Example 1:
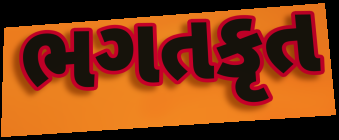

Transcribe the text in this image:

ભગતકૃત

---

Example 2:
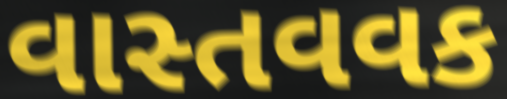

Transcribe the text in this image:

વાસ્તવવક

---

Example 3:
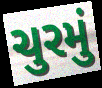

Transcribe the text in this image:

ચુરમું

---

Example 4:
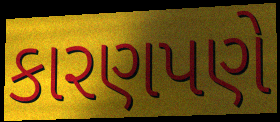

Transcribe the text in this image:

કારણપણે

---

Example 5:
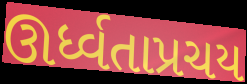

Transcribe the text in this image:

ઊર્ધ્વતાપ્રચય